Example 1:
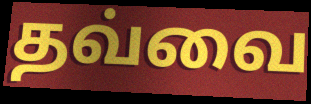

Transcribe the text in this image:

தவ்வை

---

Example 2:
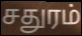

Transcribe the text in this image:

சதுரம்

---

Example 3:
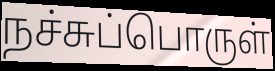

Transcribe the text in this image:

நச்சுப்பொருள்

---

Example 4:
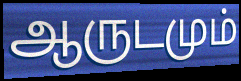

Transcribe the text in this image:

ஆருடமும்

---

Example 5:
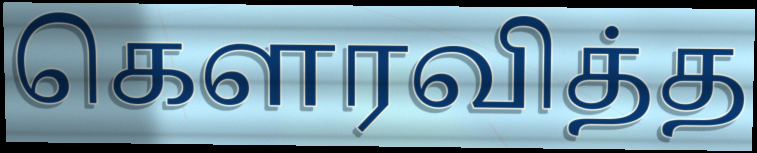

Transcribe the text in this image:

கெளரவித்த